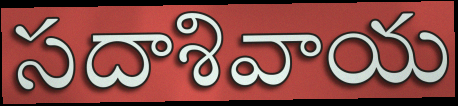
సదాశివాయ